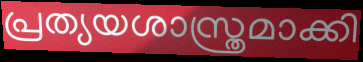
പ്രത്യയശാസ്ത്രമാക്കി